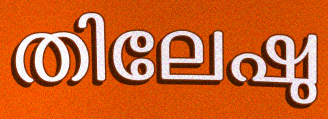
തിലേഷു